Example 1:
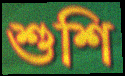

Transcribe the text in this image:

শুশি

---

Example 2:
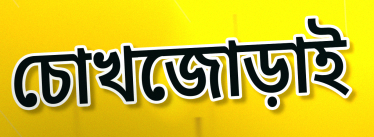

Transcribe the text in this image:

চোখজোড়াই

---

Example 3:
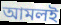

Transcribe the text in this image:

আমলই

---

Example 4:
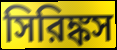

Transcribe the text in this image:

সিরিঙ্কস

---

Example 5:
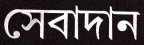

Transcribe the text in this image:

সেবাদান